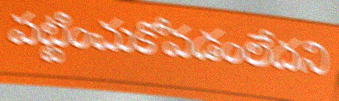
పట్టించుకోవడంలేదని